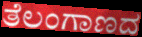
ತೆಲಂಗಾಣದ